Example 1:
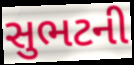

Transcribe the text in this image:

સુભટની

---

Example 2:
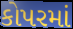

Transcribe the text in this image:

કોપરમાં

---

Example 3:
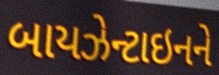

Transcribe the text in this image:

બાયઝેન્ટાઇનને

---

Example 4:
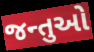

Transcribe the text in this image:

જન્તુઓ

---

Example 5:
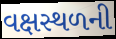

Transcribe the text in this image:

વક્ષસ્થળની